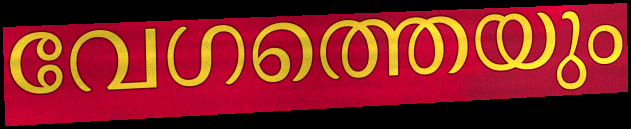
വേഗത്തെയും